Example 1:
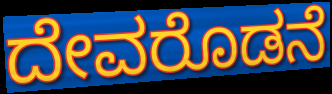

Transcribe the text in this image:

ದೇವರೊಡನೆ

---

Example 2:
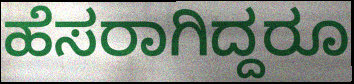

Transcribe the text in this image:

ಹೆಸರಾಗಿದ್ದರೂ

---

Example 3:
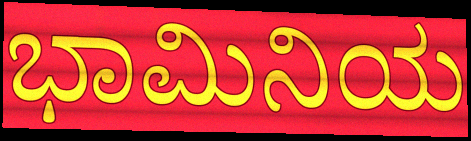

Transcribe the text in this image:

ಭಾಮಿನಿಯ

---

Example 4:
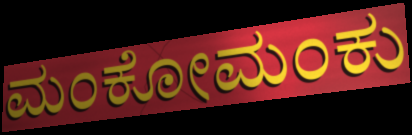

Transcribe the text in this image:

ಮಂಕೋಮಂಕು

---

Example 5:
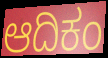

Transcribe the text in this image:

ಆದಿಕಂ